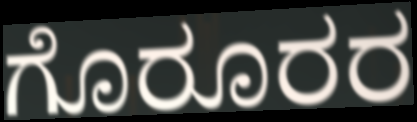
ಗೊರೂರರ